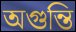
অগুন্তি